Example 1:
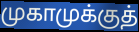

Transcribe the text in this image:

முகாமுக்குத்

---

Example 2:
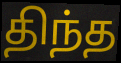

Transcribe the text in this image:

திந்த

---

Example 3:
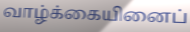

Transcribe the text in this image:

வாழ்க்கையினைப்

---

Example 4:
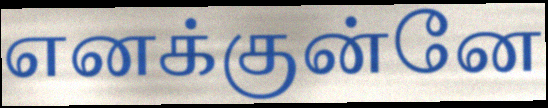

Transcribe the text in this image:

எனக்குன்னே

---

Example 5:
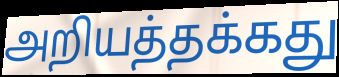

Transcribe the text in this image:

அறியத்தக்கது